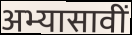
अभ्यासावीं